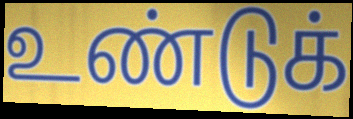
உண்டுக்